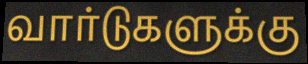
வார்டுகளுக்கு